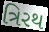
ત્રિરથ